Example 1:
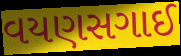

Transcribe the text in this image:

વયણસગાઈ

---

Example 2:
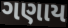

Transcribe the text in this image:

ગણાય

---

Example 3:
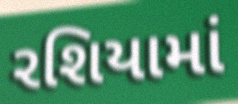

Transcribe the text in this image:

રશિયામાં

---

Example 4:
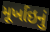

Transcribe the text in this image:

મૂર્ખાઇનું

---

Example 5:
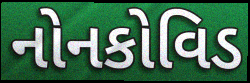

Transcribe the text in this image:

નોનકોવિડ